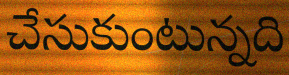
చేసుకుంటున్నది